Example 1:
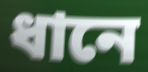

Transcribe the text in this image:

ধানে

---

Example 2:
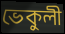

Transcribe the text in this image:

ভেকুলী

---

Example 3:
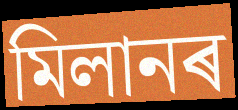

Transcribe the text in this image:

মিলানৰ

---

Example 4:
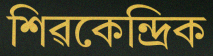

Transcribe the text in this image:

শিৱকেন্দ্ৰিক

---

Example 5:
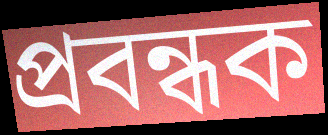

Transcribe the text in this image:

প্ৰবন্ধক